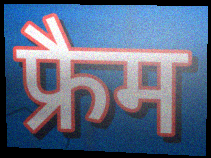
फ्रैम